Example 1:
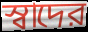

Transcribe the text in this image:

স্বাদের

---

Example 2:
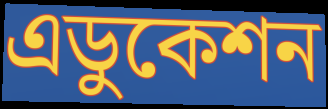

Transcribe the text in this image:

এডুকেশন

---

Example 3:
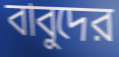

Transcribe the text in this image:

বাবুদের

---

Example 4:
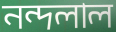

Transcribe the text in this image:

নন্দলাল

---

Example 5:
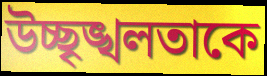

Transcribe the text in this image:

উচ্ছৃঙ্খলতাকে